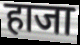
हाजा